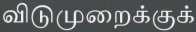
விடுமுறைக்குக்